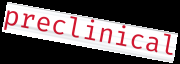
preclinical